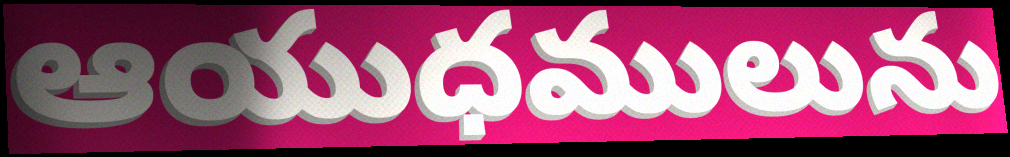
ఆయుధములును